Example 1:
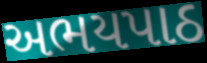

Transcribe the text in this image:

અભયપાઠ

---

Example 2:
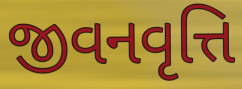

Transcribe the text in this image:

જીવનવૃત્તિ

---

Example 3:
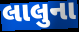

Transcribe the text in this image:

લાલુના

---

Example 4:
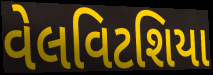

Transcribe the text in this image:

વેલવિટશિયા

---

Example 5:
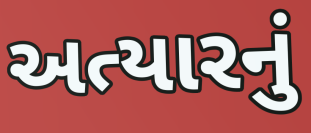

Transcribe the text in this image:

અત્યારનું